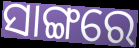
ସାଙ୍ଗରେ